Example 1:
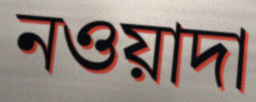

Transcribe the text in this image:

নওয়াদা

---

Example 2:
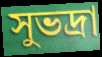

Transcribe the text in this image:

সুভদ্রা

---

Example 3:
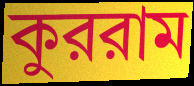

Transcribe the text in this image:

কুররাম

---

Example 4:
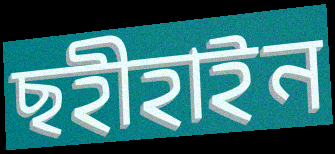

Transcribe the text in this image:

ছহীহাইন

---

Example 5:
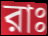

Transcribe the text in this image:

রাঃ